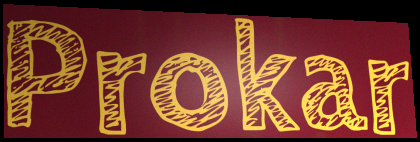
Prokar